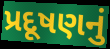
પ્રદૂષણનું